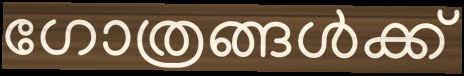
ഗോത്രങ്ങൾക്ക്